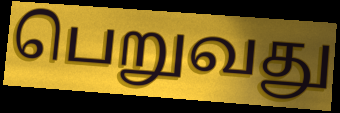
பெறுவது